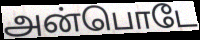
அன்பொடே